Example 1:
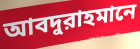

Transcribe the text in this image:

আবদুরাহমানে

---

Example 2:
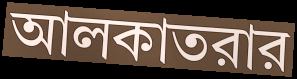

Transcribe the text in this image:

আলকাতরার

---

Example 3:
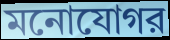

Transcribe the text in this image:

মনোযোগর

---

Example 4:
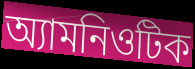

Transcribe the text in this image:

অ্যামনিওটিক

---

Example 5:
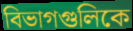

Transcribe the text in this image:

বিভাগগুলিকে